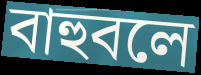
বাহুবলে